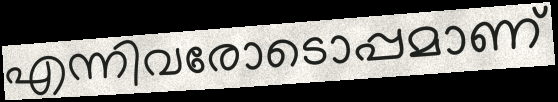
എന്നിവരോടൊപ്പമാണ്